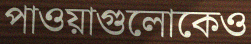
পাওয়াগুলোকেও